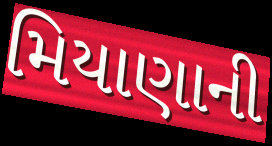
મિયાણાની